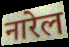
नारेल